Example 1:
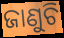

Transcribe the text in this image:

ଜାଣୁଚି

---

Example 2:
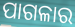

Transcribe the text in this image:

ପାଗଳାର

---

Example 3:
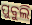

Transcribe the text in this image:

ପୁବୁଲି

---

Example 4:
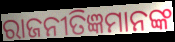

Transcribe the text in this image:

ରାଜନୀତିଜ୍ଞମାନଙ୍କ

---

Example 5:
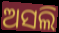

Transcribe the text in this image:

ଅସଲି